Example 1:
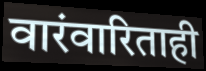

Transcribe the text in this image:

वारंवारिताही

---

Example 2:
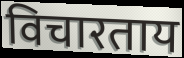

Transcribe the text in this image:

विचारताय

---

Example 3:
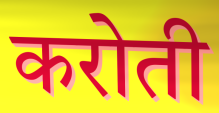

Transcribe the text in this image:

करोती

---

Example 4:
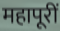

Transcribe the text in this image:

महापूरीं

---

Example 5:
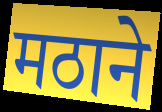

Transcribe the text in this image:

मठाने